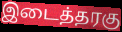
இடைத்தரகு